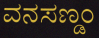
ವನಸಣ್ಡಂ